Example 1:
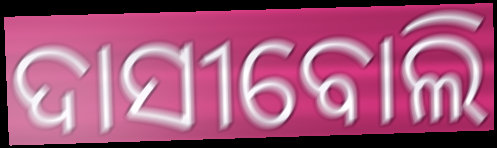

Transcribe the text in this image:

ଦାସୀବୋଲି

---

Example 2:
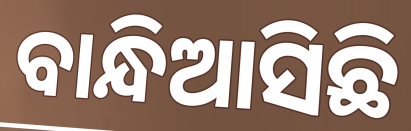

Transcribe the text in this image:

ବାନ୍ଧିଆସିଛି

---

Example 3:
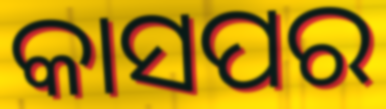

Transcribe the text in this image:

କାସପର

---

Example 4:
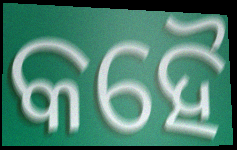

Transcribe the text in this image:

କହୈ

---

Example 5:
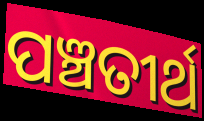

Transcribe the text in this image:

ପଞ୍ଚତୀର୍ଥ